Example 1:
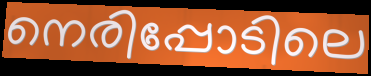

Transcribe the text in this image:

നെരിപ്പോടിലെ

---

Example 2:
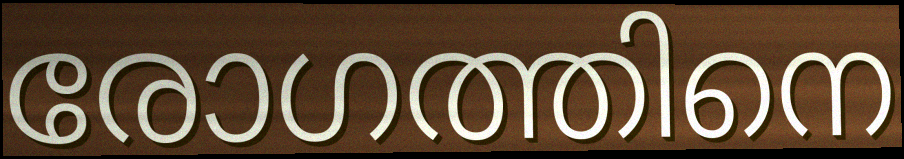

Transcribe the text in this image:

രോഗത്തിനെ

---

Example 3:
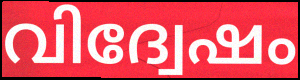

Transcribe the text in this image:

വിദ്വേഷം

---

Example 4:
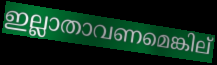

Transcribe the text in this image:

ഇല്ലാതാവണമെങ്കില്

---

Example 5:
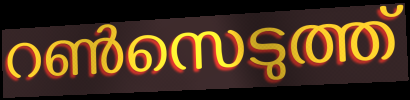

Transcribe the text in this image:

റൺസെടുത്ത്